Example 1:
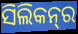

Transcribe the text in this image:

ସିଲିକନ୍‌ର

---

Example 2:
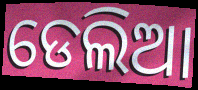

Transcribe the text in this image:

ଡେଲିଆ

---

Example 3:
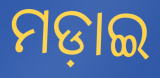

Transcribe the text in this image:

ମଡ଼ାଇ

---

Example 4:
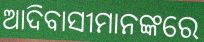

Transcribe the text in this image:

ଆଦିବାସୀମାନଙ୍କରେ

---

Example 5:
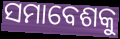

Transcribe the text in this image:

ସମାବେଶକୁ